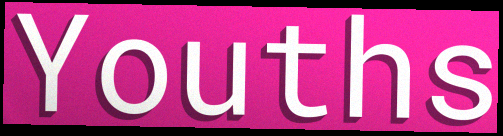
Youths